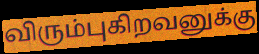
விரும்புகிறவனுக்கு